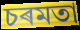
চৰমতা